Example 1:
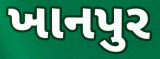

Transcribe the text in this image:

ખાનપુર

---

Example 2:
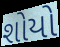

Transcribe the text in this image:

શોયો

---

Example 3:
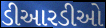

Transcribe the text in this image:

ડીઆરડીઓ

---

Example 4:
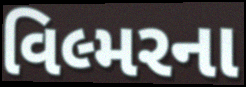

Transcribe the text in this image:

વિલ્મરના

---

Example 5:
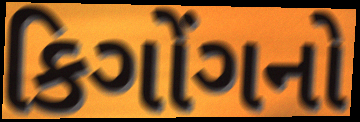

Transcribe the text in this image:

કિગોંગનો